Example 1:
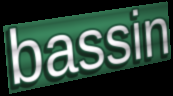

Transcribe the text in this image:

bassin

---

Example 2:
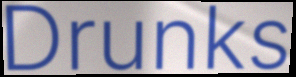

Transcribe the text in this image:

Drunks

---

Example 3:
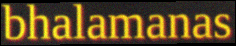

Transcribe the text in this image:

bhalamanas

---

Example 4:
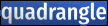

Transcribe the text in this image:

quadrangle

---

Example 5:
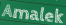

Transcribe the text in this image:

Amalek